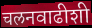
चलनवाढीशी